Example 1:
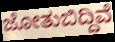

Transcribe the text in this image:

ಜೋತುಬಿದ್ದಿವೆ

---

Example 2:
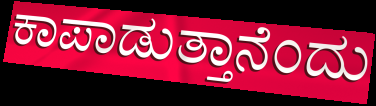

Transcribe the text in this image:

ಕಾಪಾಡುತ್ತಾನೆಂದು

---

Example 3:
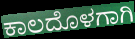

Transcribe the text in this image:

ಕಾಲದೊಳಗಾಗಿ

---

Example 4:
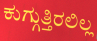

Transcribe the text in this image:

ಕುಗ್ಗುತ್ತಿರಲಿಲ್ಲ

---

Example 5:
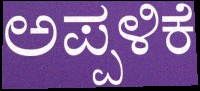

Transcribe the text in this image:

ಅಪ್ಪಳಿಕೆ